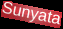
Sunyata